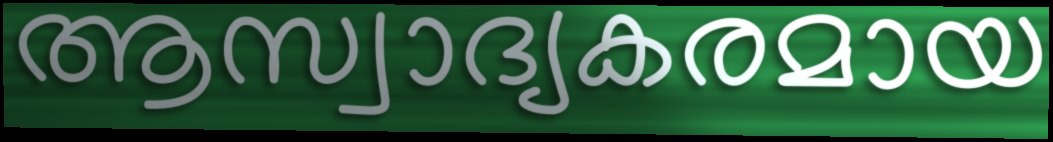
ആസ്വാദ്യകരമായ